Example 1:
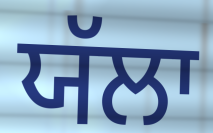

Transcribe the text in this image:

ਯੱਲਾ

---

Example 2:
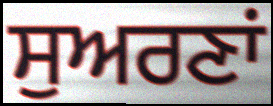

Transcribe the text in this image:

ਸੁਅਰਣਾਂ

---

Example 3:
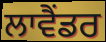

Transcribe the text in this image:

ਲਾਵੈਂਡਰ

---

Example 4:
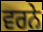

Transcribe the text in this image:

ਵਰਨੇ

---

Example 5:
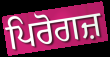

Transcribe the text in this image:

ਪਿਰੋਗਜ਼